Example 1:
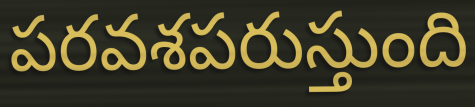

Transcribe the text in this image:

పరవశపరుస్తుంది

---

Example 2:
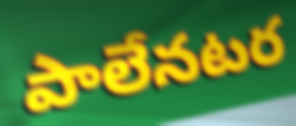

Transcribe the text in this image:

పాలేనటర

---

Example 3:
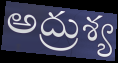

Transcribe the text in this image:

అద్రుశ్య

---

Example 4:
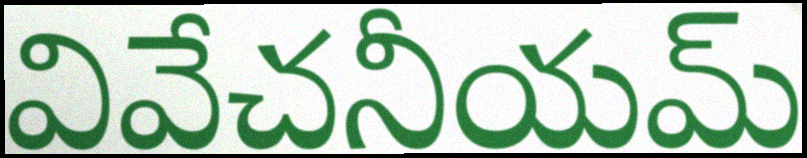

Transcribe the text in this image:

వివేచనీయమ్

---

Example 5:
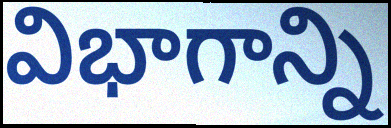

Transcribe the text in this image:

విభాగాన్ని